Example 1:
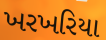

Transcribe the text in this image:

ખરખરિયા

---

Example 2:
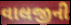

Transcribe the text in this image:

વાલજીની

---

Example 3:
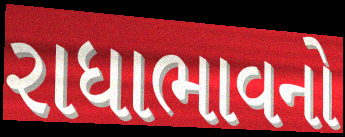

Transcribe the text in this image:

રાધાભાવનો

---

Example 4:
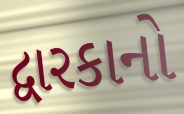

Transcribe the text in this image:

દ્વારકાનો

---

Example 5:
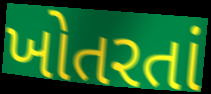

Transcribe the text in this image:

ખોતરતાં